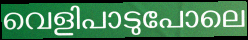
വെളിപാടുപോലെ